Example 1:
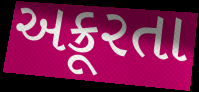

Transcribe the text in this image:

અક્રૂરતા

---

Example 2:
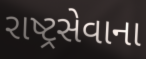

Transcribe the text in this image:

રાષ્ટ્રસેવાના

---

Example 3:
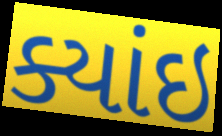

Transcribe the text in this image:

ક્યાંઇ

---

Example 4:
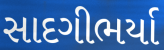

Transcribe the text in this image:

સાદગીભર્યા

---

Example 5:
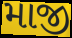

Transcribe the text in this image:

માજી